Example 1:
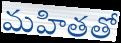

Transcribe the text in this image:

మహితతో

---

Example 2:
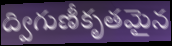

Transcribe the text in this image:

ద్విగుణీకృతమైన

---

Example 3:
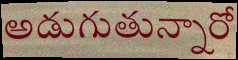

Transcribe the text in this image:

అడుగుతున్నారో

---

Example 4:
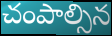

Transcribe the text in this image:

చంపాల్సిన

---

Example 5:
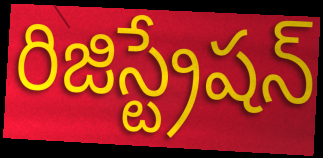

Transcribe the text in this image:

రిజిస్ట్రేషన్